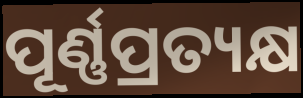
ପୂର୍ଣ୍ଣପ୍ରତ୍ୟକ୍ଷ